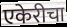
एकेरीचा